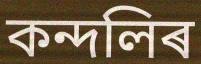
কন্দলিৰ